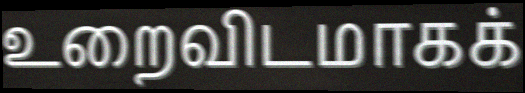
உறைவிடமாகக்